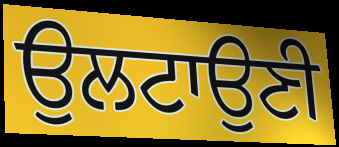
ਉਲਟਾਉਣੀ